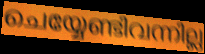
ചെയ്യേണ്ടിവന്നില്ല